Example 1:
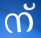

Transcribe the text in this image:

ന്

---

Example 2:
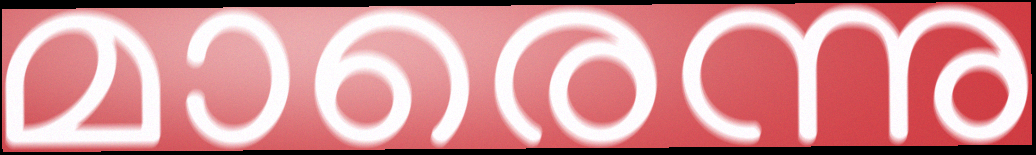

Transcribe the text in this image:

മാരെന്നു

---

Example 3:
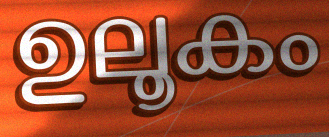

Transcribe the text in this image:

ഉലൂകം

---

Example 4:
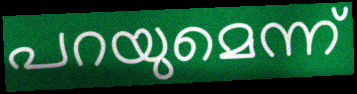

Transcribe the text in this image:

പറയുമെന്ന്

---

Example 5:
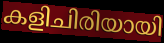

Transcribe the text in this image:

കളിചിരിയായി